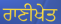
ਰਾਣੀਖੇਤ